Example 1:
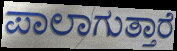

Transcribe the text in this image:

ಪಾಲಾಗುತ್ತಾರೆ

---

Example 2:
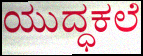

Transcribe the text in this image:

ಯುದ್ಧಕಲೆ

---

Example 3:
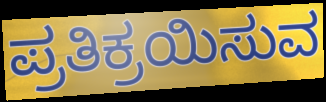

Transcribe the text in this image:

ಪ್ರತಿಕ್ರಯಿಸುವ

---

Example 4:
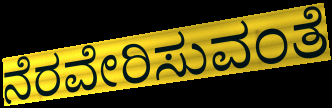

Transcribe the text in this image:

ನೆರವೇರಿಸುವಂತೆ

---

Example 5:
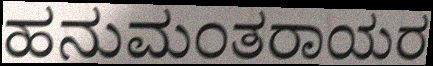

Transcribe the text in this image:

ಹನುಮಂತರಾಯರ